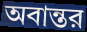
অবান্তর